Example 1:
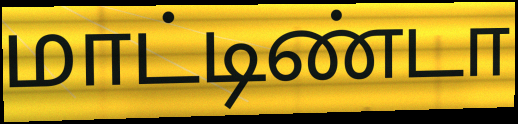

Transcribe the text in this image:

மாட்டிண்டா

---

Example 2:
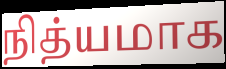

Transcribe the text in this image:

நித்யமாக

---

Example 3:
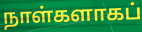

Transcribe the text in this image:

நாள்களாகப்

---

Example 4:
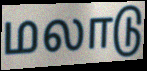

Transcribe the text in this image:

மலாடு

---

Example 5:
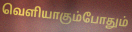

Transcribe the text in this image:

வெளியாகும்போதும்